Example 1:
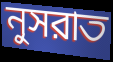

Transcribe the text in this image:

নুসরাত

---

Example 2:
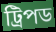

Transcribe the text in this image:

ট্রিপড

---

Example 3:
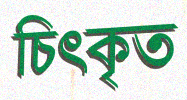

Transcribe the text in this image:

চিৎকৃত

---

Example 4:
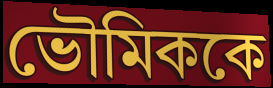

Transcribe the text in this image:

ভৌমিককে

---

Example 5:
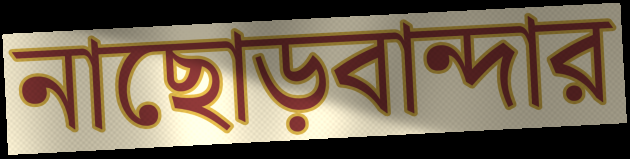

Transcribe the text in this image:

নাছোড়বান্দার